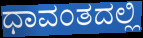
ಧಾವಂತದಲ್ಲಿ